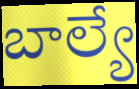
బాల్యే